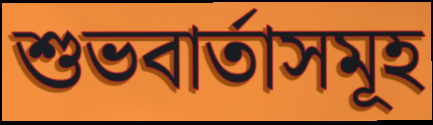
শুভবাৰ্তাসমূহ